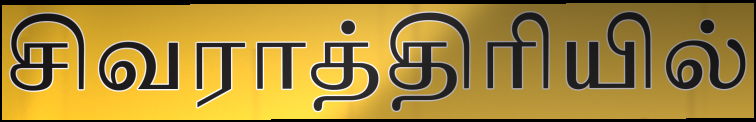
சிவராத்திரியில்